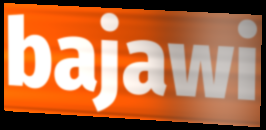
bajawi